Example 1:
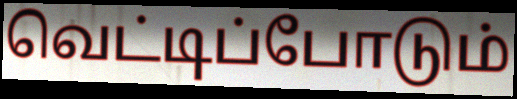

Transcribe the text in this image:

வெட்டிப்போடும்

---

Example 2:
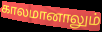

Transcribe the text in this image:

காலமானாலும்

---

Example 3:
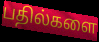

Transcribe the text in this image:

பதில்களை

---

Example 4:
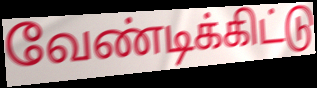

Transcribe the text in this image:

வேண்டிக்கிட்டு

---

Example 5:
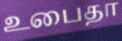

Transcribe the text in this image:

உபைதா